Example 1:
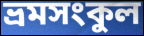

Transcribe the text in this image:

ভ্রমসংকুল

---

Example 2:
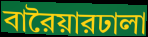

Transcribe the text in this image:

বারৈয়ারঢালা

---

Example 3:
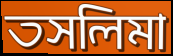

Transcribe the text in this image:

তসলিমা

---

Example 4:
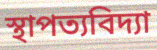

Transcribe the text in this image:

স্থাপত্যবিদ্যা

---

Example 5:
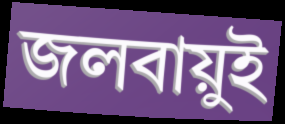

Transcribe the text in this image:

জলবায়ুই